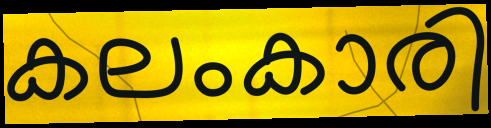
കലംകാരി